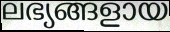
ലഭ്യങ്ങളായ